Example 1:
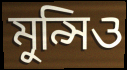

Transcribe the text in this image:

মুন্সিও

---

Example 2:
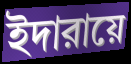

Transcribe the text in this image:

ইদারায়ে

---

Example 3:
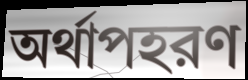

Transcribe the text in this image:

অর্থাপহরণ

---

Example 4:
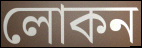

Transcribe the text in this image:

লোকন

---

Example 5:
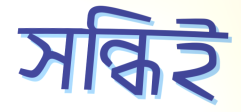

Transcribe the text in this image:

সন্ধিই